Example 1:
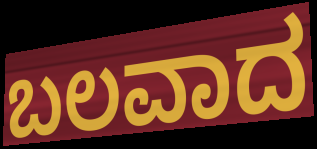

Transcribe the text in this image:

ಬಲವಾದ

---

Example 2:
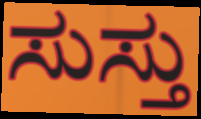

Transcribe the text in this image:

ಸುಸ್ತು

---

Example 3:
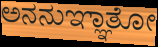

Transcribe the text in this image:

ಅನನುಞ್ಞಾತೋ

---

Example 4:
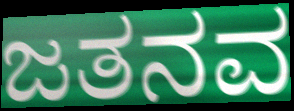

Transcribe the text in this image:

ಜತನವ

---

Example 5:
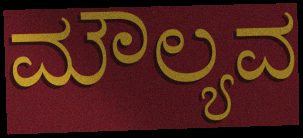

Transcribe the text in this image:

ಮೌಲ್ಯವ